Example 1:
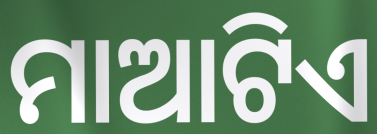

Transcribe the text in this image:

ମାଆଟିଏ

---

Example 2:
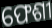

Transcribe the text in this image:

ଫେଶୀ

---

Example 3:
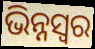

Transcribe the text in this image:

ଭିନ୍ନସ୍ବର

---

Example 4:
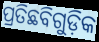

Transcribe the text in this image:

ପ୍ରତିଛବିଗୁଡ଼ିକ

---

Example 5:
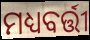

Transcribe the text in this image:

ମଧ୍ୟବର୍ତ୍ତୀ